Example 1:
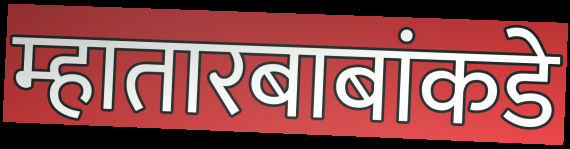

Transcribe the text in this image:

म्हातारबाबांकडे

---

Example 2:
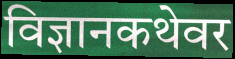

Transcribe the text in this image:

विज्ञानकथेवर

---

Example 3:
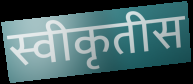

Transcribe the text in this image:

स्वीकृतीस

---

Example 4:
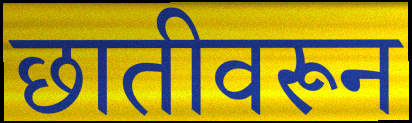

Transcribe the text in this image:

छातीवरून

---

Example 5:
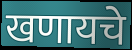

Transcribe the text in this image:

खणायचे